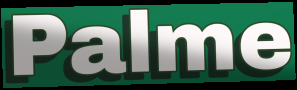
Palme